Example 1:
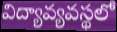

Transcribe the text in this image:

విద్యావ్యవస్థలో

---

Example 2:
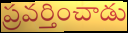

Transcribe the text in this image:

ప్రవర్తించాడు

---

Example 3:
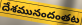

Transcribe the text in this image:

దేశమునందంతట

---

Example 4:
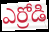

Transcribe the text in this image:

ఎర్రోడి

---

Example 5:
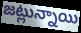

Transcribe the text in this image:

జట్లున్నాయి